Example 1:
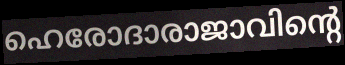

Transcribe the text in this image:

ഹെരോദാരാജാവിന്റെ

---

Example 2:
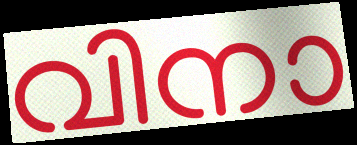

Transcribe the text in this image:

വിനാ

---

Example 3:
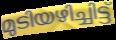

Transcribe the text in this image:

മുടിയഴിച്ചിട്ട്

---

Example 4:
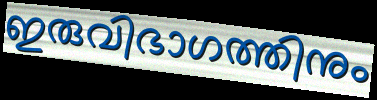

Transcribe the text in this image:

ഇരുവിഭാഗത്തിനും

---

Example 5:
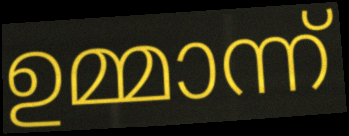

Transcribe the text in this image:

ഉമ്മാന്ന്